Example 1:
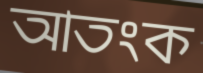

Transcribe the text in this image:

আতংক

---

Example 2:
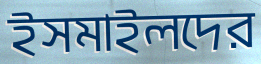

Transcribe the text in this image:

ইসমাইলদের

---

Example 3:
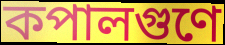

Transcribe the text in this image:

কপালগুণে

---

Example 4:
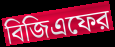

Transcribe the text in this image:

বিজিএফের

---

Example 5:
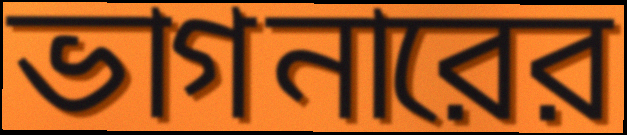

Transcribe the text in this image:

ভাগনারের